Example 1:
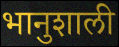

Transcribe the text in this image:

भानुशाली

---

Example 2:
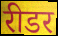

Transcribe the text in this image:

रीडर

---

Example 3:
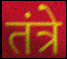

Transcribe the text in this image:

तंत्रे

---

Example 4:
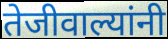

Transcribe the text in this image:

तेजीवाल्यांनी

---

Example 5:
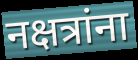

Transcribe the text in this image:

नक्षत्रांना